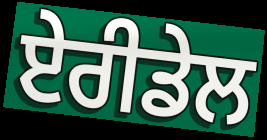
ਏਰੀਡੇਲ